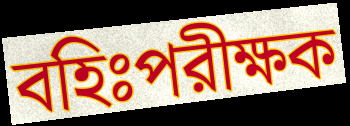
বহিঃপরীক্ষক